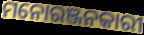
ମନୋରଞ୍ଜନକାରୀ